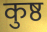
कुष्ठ